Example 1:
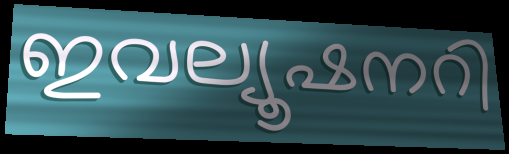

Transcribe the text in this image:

ഇവല്യൂഷനറി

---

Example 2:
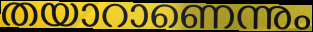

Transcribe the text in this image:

തയാറാണെന്നും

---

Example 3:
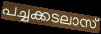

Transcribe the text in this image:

പച്ചക്കടലാസ്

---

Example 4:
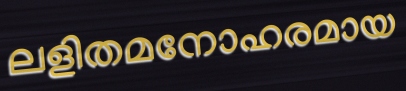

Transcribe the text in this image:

ലളിതമനോഹരമായ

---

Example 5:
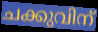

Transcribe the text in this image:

ചക്കുവിന്